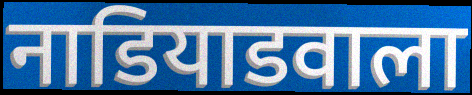
नाडियाडवाला